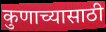
कुणाच्यासाठी